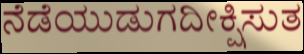
ನೆಡೆಯುಡುಗದೀಕ್ಷಿಸುತ